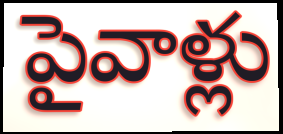
పైవాళ్లు